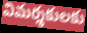
విమర్శకులకు